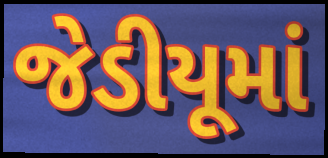
જેડીયૂમાં